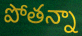
పోతన్నా